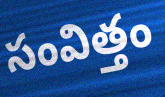
సంవిత్తం